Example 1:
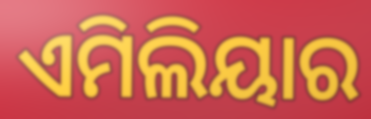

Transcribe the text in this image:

ଏମିଲିୟାର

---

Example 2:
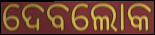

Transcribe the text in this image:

ଦେବଲୋକ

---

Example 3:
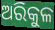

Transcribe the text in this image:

ଅରିକୁଳ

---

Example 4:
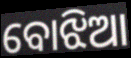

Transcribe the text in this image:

ବୋଝିଆ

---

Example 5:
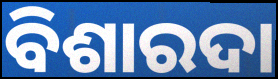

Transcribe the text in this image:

ବିଶାରଦା